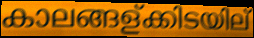
കാലങ്ങള്ക്കിടയില്